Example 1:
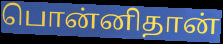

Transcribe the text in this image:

பொன்னிதான்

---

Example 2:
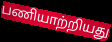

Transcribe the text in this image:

பணியாற்றியது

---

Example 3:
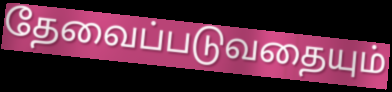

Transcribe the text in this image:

தேவைப்படுவதையும்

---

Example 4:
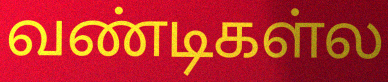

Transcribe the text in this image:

வண்டிகள்ல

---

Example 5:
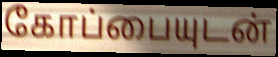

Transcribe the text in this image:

கோப்பையுடன்